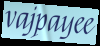
vajpayee